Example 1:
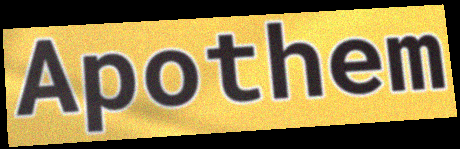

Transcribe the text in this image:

Apothem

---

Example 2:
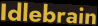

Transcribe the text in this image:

Idlebrain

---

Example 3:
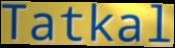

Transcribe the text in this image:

Tatkal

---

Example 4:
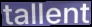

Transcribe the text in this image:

tallent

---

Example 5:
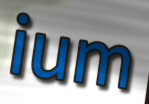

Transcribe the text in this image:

ium